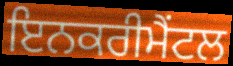
ਇਨਕਰੀਮੈਂਟਲ